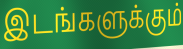
இடங்களுக்கும்